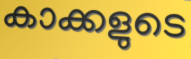
കാക്കളുടെ